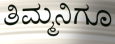
ತಿಮ್ಮನಿಗೂ